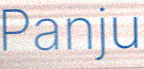
Panju